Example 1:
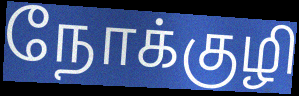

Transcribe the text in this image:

நோக்குழி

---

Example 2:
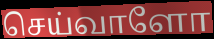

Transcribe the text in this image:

செய்வாளோ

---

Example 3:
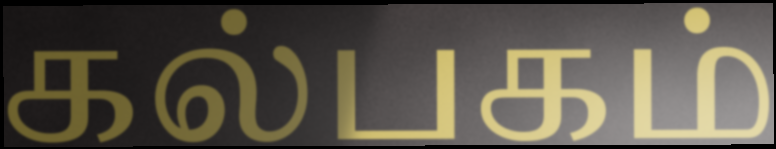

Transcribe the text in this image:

கல்பகம்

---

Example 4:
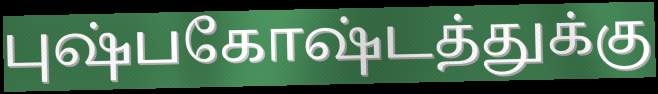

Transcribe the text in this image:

புஷ்பகோஷ்டத்துக்கு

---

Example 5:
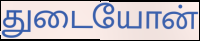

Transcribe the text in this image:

துடையோன்